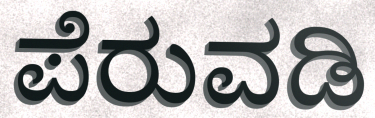
ಪೆರುವಡಿ